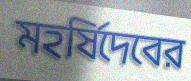
মহর্ষিদেবের